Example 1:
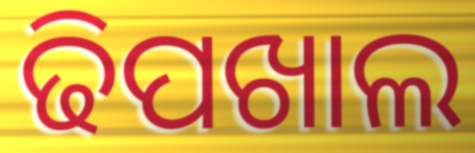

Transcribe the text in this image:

ଢିପଖାଲ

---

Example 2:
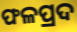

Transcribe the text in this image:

ଫଳପ୍ରଦ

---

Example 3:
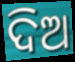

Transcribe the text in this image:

ଦିଅ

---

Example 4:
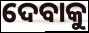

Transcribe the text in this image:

ଦେବାକୁ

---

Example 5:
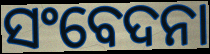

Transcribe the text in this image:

ସଂବେଦନା